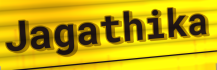
Jagathika